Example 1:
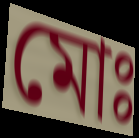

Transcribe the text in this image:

মোঃ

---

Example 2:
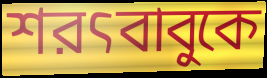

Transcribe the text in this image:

শরৎবাবুকে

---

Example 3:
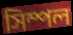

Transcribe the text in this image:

সিম্পল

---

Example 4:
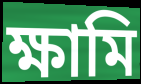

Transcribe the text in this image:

ক্ষামি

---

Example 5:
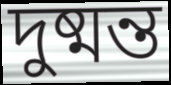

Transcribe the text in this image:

দুষ্মন্ত